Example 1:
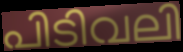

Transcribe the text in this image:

പിടിവലി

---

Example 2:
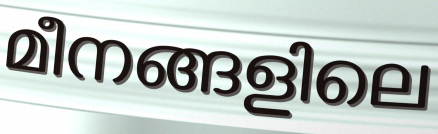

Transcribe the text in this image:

മീനങ്ങളിലെ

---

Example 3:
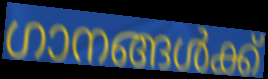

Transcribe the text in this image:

ഗാനങ്ങൾക്ക്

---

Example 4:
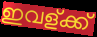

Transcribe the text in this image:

ഇവള്ക്ക്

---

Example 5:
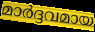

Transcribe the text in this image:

മാർദ്ദവമായ